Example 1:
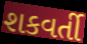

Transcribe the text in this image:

શકવર્તી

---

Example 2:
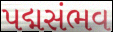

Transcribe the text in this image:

પદ્મસંભવ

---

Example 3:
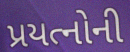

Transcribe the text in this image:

પ્રયત્નોની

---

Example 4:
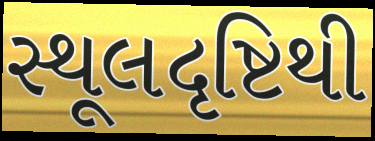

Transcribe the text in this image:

સ્થૂલદૃષ્ટિથી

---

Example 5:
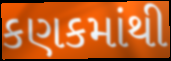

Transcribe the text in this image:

કણકમાંથી